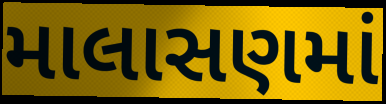
માલાસણમાં